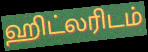
ஹிட்லரிடம்